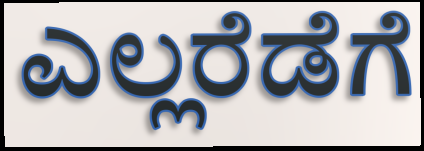
ಎಲ್ಲರೆಡೆಗೆ